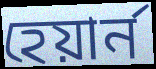
হেয়ার্ন